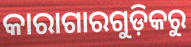
କାରାଗାରଗୁଡ଼ିକରୁ